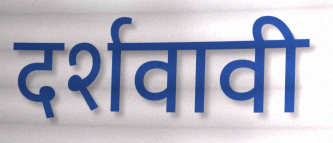
दर्शवावी